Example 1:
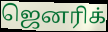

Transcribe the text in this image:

ஜெனரிக்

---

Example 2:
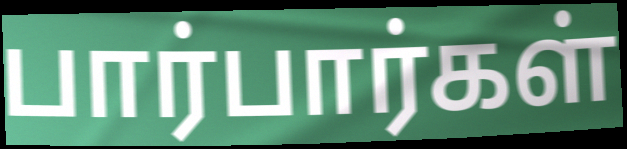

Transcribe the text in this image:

பார்பார்கள்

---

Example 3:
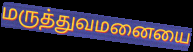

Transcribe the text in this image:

மருத்துவமனையை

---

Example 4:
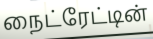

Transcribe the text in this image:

நைட்ரேட்டின்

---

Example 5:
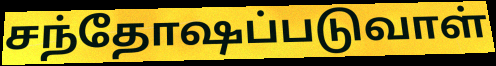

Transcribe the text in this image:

சந்தோஷப்படுவாள்